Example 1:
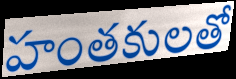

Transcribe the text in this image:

హంతకులతో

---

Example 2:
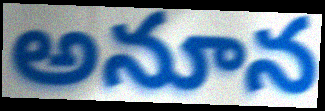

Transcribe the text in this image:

అనూన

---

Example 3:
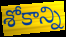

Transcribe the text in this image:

శోకాన్ని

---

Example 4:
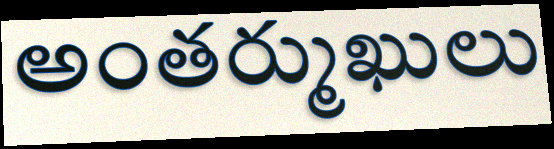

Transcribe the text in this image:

అంతర్ముఖులు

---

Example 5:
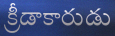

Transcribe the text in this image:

క్రీడాకారుడు